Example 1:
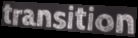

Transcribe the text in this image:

transition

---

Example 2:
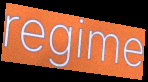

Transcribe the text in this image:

regime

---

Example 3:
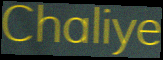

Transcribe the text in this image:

Chaliye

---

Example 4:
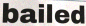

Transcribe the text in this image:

bailed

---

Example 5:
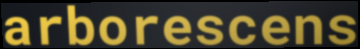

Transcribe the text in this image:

arborescens